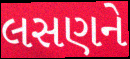
લસણને